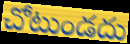
చోటుండదు